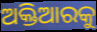
ଅକ୍ତିଆରକୁ